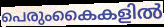
പെരുംകൈകളിൽ